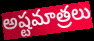
అష్టమాత్రలు